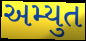
અમ્યુત